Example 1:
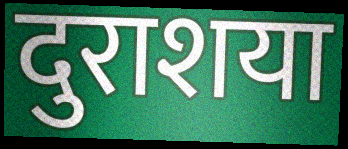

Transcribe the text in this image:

दुराशया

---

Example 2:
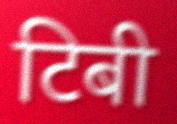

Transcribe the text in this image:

टिबी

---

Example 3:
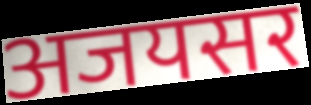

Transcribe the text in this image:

अजयसर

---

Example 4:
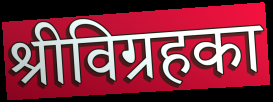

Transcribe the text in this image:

श्रीविग्रहका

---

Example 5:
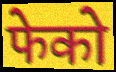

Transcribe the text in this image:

फेको